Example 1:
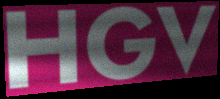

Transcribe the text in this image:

HGV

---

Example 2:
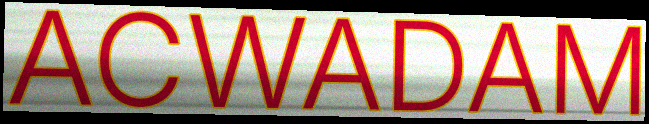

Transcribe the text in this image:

ACWADAM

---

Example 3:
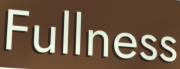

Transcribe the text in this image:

Fullness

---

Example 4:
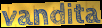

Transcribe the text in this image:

vandita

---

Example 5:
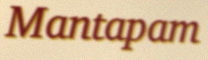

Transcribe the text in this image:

Mantapam